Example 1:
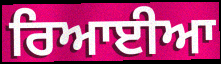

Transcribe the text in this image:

ਰਿਆਈਆ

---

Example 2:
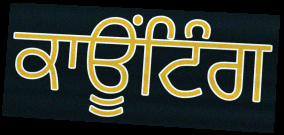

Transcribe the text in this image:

ਕਾਊਂਟਿੰਗ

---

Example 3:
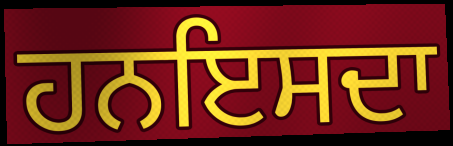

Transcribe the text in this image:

ਹਨਇਸਦਾ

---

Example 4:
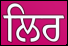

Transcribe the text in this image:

ਲਿਰ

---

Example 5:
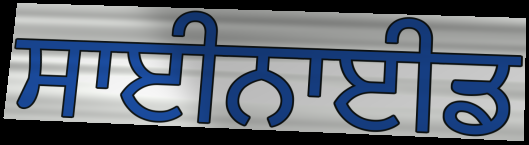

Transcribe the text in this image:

ਸਾਈਨਾਈਡ